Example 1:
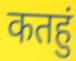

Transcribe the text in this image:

कतहुं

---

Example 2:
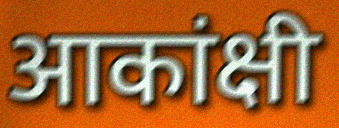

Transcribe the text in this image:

आकांक्षी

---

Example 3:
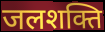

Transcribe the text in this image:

जलशक्ति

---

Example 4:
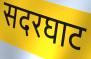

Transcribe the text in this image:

सदरघाट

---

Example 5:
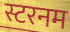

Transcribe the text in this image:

स्टरनम